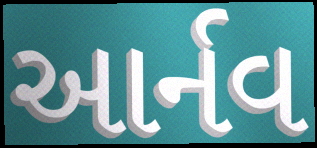
આર્નવ